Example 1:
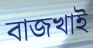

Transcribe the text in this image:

বাজখাই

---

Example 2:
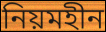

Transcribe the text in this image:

নিয়মহীন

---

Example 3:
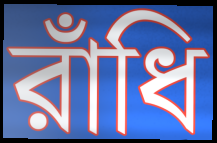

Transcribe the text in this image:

রাঁধি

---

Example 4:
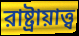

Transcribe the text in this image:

রাষ্ট্রায়াত্ত্ব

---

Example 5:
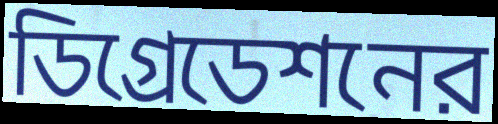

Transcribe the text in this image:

ডিগ্রেডেশনের